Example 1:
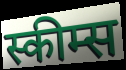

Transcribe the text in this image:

स्‍कीम्‍स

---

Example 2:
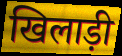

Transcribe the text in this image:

खिलाड़ी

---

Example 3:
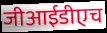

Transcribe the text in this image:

जीआईडीएच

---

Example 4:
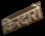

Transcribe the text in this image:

किरदारों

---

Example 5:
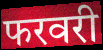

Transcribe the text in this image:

फरवरी